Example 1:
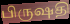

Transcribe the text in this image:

பிருஷதி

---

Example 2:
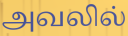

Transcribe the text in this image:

அவலில்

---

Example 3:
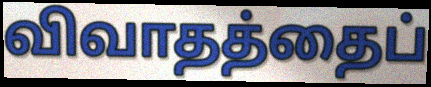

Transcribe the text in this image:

விவாதத்தைப்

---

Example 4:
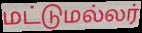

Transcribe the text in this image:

மட்டுமல்லர்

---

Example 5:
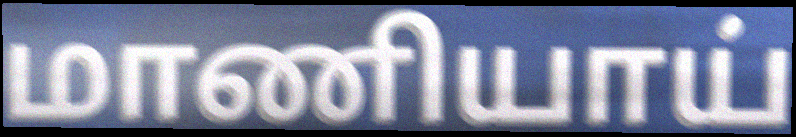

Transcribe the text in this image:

மாணியாய்